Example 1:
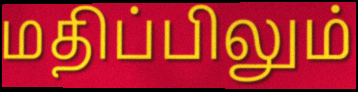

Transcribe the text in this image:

மதிப்பிலும்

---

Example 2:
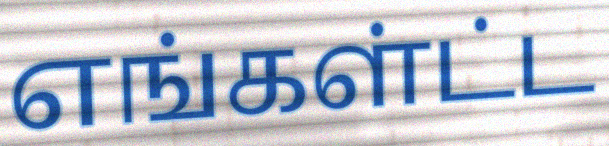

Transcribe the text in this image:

எங்கள்ட்ட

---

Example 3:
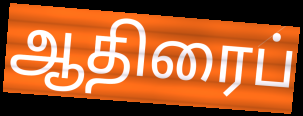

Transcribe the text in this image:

ஆதிரைப்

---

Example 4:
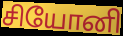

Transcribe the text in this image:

சியோனி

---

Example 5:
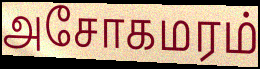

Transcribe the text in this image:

அசோகமரம்